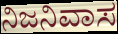
ನಿಜನಿವಾಸ